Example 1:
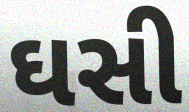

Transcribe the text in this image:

ઘસી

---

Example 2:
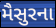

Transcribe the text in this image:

મૈસુરના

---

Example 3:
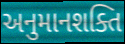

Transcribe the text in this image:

અનુમાનશક્તિ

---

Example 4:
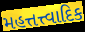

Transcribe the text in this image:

મહત્તત્ત્વાદિક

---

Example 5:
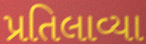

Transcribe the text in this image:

પ્રતિલાવ્યા